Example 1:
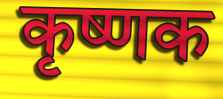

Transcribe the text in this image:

कृष्णक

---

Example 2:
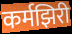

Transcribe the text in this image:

कर्मझिरी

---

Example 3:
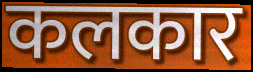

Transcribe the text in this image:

कलकार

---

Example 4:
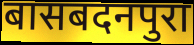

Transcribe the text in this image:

बासबदनपुरा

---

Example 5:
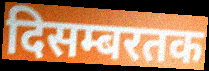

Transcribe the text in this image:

दिसम्बरतक